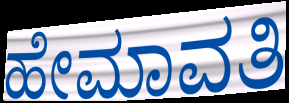
ಹೇಮಾವತಿ